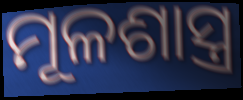
ମୂଳଶାସ୍ତ୍ର